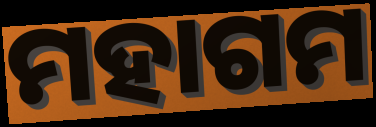
ମହାଗମ